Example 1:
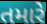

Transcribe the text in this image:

તમારે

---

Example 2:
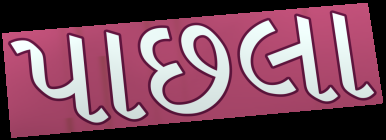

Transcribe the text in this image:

પાછલા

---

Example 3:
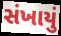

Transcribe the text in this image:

સંખાયું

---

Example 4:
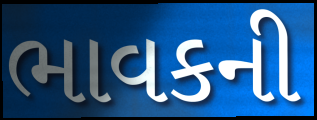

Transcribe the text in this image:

ભાવકની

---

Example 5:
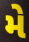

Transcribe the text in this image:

મે